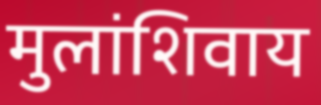
मुलांशिवाय